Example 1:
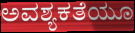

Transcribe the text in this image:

ಅವಶ್ಯಕತೆಯೂ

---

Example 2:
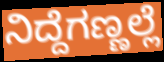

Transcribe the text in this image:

ನಿದ್ದೆಗಣ್ಣಲ್ಲೆ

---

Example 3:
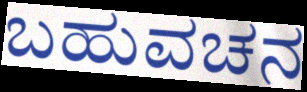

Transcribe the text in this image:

ಬಹುವಚನ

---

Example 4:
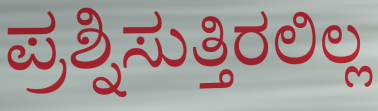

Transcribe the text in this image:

ಪ್ರಶ್ನಿಸುತ್ತಿರಲಿಲ್ಲ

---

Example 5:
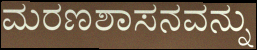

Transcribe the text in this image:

ಮರಣಶಾಸನವನ್ನು